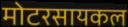
मोटरसायकल